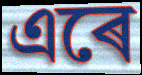
এৰে